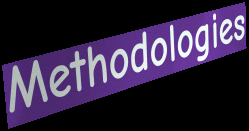
Methodologies